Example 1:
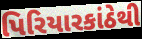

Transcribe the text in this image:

પિરિયારકાંઠેથી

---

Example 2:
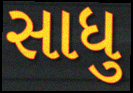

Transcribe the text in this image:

સાધુ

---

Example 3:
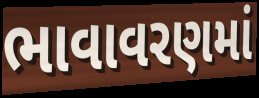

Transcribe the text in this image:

ભાવાવરણમાં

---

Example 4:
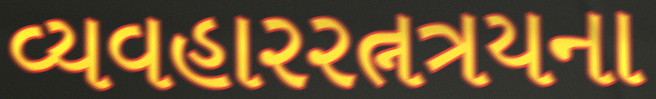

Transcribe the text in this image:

વ્યવહારરત્નત્રયના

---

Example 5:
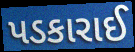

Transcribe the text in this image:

પડકારાઈ